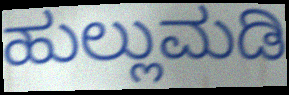
ಹುಲ್ಲುಮಡಿ